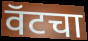
वॅटचा